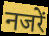
नजरें